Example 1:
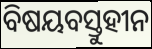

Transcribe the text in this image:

ବିଷୟବସ୍ତୁହୀନ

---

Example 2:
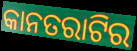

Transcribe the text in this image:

କାନତରାଟିର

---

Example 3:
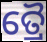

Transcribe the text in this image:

ତ୍ରୈ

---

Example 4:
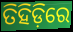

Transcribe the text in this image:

ତିହିଡ଼ିରେ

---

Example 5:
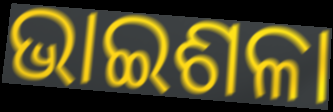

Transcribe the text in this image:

ଭାଇଶଳା